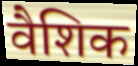
वैशिक